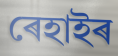
ৰেহাইৰ